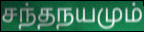
சந்தநயமும்